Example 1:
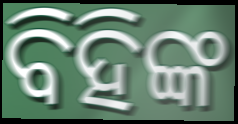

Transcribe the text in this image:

ବିହିଙ୍କ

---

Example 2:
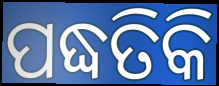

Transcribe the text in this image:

ପଦ୍ଧତିକି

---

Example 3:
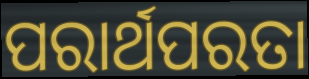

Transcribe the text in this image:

ପରାର୍ଥପରତା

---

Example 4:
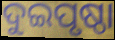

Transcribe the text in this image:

ଦୁଇପୃଷ୍ଠା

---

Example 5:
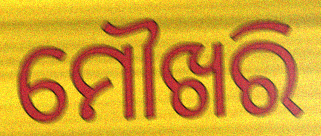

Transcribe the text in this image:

ମୌଖରି